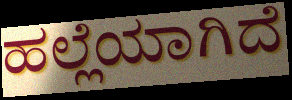
ಹಲ್ಲೆಯಾಗಿದೆ